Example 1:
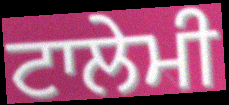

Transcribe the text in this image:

ਟਾਲੇਮੀ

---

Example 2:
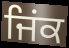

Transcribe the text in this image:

ਜਿਂਕ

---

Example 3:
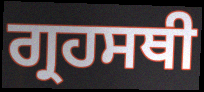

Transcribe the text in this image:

ਗ੍ਰਹਸਥੀ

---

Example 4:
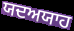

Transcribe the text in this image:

ਯਦਅਯਾਹ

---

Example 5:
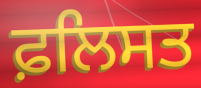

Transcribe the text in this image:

ਫ਼ਲਿਸਤ